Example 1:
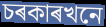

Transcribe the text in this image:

চৰকাৰখনে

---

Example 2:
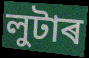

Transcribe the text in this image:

লুটাৰ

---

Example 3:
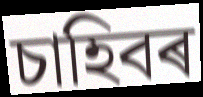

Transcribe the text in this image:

চাহিবৰ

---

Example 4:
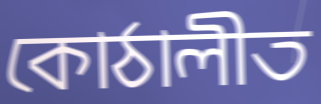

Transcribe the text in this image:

কোঠালীত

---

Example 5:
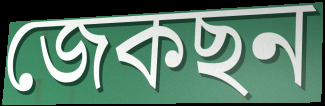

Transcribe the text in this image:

জেকছন